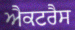
ਐਕਟਰੈਸ